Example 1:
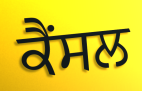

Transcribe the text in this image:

ਕੈਂਸਲ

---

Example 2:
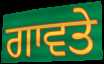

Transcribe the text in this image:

ਗਾਵਤੇ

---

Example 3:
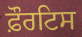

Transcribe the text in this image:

ਫ਼ੌਰਟਿਸ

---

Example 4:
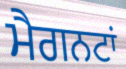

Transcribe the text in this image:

ਮੈਗਨਟਾਂ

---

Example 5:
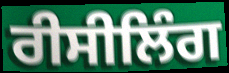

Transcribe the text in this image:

ਰੀਸੀਲਿੰਗ